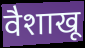
वैशाखू